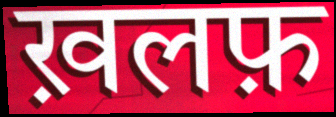
ख़लफ़